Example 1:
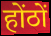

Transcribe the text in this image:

होंठों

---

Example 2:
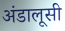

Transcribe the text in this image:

अंडालूसी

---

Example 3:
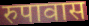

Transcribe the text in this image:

रुपावास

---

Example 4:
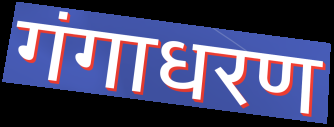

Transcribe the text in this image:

गंगाधरण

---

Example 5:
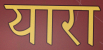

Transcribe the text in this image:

यारा